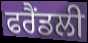
ਫਰੈਂਡਲੀ